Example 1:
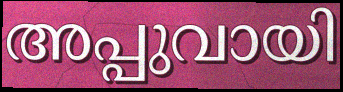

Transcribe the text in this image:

അപ്പുവായി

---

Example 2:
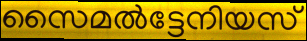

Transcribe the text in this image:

സൈമൽട്ടേനിയസ്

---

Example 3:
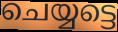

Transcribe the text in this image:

ചെയ്യട്ടെ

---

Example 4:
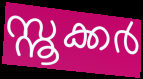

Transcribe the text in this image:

സ്നൂക്കർ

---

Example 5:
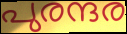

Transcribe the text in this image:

പുരന്ദര